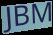
JBM